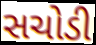
સચોડી